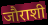
जौराशी